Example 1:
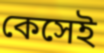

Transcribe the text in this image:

কেসেই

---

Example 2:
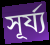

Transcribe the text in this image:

সূর্য্য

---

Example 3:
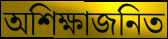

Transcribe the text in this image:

অশিক্ষাজনিত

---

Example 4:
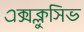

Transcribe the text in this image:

এক্সক্লুসিভ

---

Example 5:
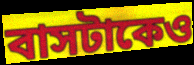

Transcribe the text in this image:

বাসটাকেও